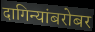
दागिन्यांबरोबर